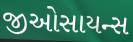
જીઓસાયન્સ